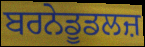
ਬਰਨੇਡੂਡਲਜ਼